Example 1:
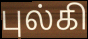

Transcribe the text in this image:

புல்கி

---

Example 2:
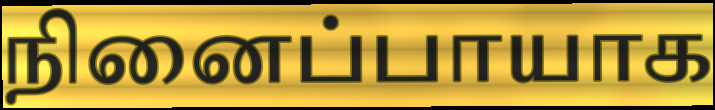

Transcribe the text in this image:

நினைப்பாயாக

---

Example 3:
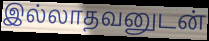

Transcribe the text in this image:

இல்லாதவனுடன்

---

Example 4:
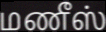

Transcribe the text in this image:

மணீஸ்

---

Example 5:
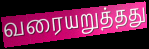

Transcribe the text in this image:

வரையறுத்தது